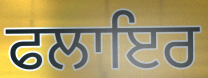
ਫਲਾਇਰ